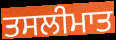
ਤਸਲੀਮਾਤ